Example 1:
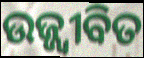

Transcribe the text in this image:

ଉଜ୍ଜ୍ୱୀବିତ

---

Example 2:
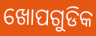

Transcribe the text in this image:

ଖୋପଗୁଡିକ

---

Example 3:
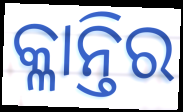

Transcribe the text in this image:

କ୍ଳାନ୍ତିର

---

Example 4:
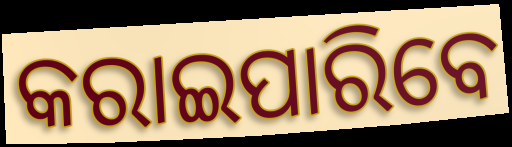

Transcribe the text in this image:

କରାଇପାରିବେ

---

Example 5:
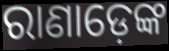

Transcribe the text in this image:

ରାଣାଡ଼େଙ୍କ